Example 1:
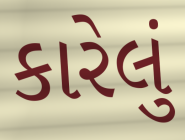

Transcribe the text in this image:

કારેલું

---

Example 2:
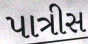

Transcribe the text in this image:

પાત્રીસ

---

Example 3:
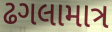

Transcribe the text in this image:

ઢગલામાત્ર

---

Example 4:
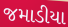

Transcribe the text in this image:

જમાડીયા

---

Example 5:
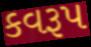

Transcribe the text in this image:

કવરૂપ